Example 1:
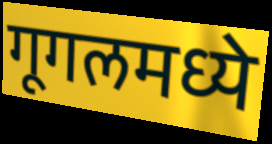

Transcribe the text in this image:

गूगलमध्ये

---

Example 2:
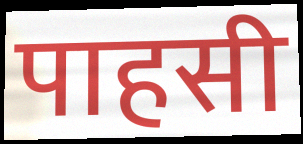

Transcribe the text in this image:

पाहसी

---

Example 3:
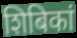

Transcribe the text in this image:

शिबिकां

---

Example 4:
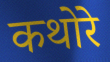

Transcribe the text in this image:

कथोरे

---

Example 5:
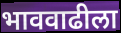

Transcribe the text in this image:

भाववाढीला